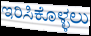
ಇರಿಸಿಕೊಳ್ಳಲು